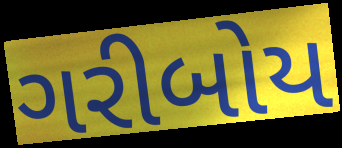
ગરીબોય